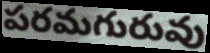
పరమగురువు